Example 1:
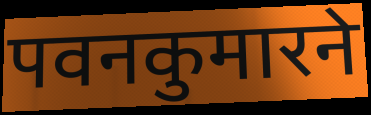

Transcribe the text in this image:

पवनकुमारने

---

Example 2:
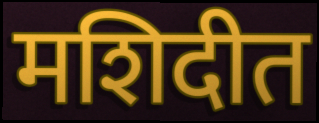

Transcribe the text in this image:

मशिदीत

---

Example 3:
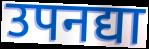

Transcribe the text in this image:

उपनद्या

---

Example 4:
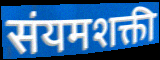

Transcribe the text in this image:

संयमशक्ती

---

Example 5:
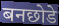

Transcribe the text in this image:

बनछोडे